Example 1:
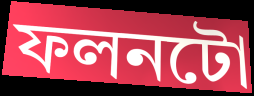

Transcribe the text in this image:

ফলনটো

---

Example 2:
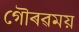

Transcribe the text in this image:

গৌৰৱময়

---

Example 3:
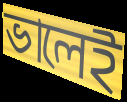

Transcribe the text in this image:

ভালেই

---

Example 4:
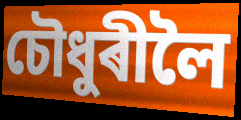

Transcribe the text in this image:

চৌধুৰীলৈ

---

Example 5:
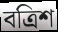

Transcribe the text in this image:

বত্ৰিশ